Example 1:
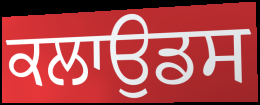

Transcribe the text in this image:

ਕਲਾਉਡਸ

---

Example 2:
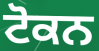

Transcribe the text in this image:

ਟੋਕਨ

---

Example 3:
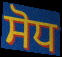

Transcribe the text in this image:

ਸੋਧ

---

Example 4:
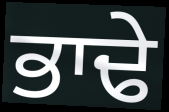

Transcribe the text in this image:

ਭਾਢੇ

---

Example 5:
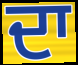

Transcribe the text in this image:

ਦਾ